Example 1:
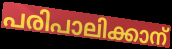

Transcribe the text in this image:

പരിപാലിക്കാന്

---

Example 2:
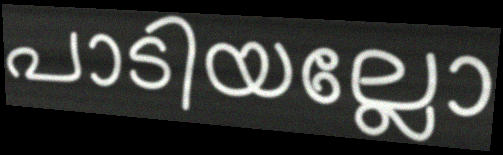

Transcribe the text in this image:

പാടിയല്ലോ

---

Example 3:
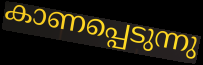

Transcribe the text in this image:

കാണപ്പെടുന്നു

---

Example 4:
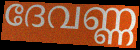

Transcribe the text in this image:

ദേവണ്ണ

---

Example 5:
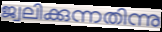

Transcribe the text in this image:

ജ്വലിക്കുന്നതിന്നു